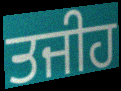
ਤਜੀਹ